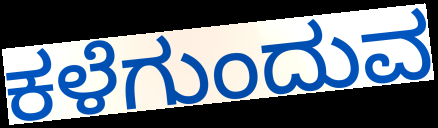
ಕಳೆಗುಂದುವ